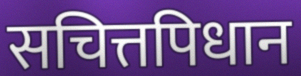
सचित्तपिधान